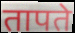
तापते